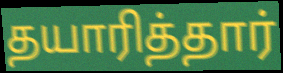
தயாரித்தார்